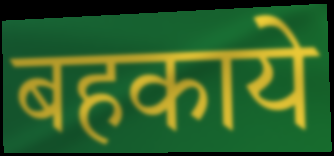
बहकाये